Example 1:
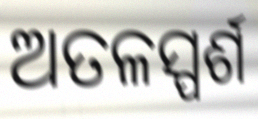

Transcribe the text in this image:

ଅତଳସ୍ପର୍ଶ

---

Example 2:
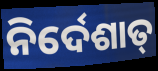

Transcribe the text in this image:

ନିର୍ଦେଶାତ୍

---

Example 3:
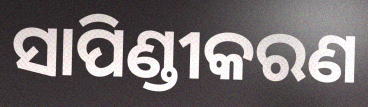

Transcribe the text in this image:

ସାପିଣ୍ଡୀକରଣ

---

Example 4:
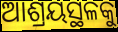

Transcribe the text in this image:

ଆଶ୍ରୟସ୍ଥଳକୁ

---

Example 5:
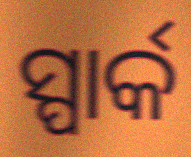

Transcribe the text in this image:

ସ୍ପାର୍କ